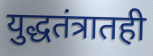
युद्धतंत्रातही